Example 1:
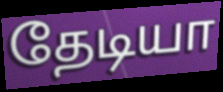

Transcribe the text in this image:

தேடியா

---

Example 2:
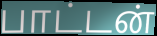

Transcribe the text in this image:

பாட்டன்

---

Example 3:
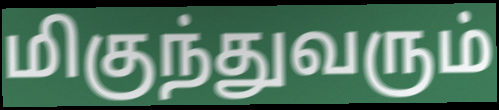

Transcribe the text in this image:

மிகுந்துவரும்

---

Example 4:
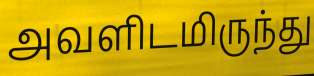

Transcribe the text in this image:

அவளிடமிருந்து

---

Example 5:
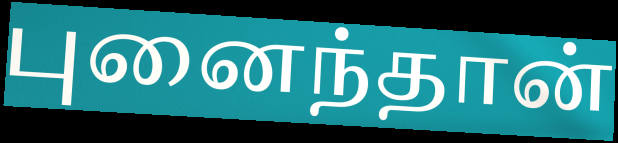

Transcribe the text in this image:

புனைந்தான்